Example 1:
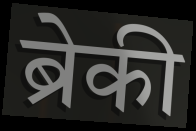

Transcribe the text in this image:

ब्रेकी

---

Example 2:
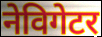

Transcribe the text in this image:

नेविगेटर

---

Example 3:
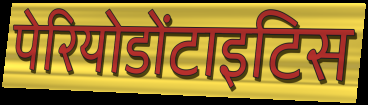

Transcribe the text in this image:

पेरियोडोंटाइटिस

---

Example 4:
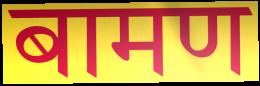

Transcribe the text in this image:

बामण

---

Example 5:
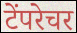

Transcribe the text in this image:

टेंपरेचर